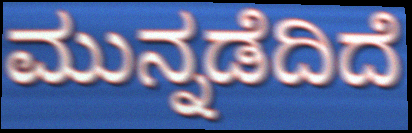
ಮುನ್ನಡೆದಿದೆ